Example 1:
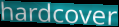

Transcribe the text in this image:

hardcover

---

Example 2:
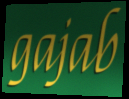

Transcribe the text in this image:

gajab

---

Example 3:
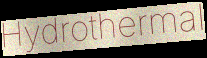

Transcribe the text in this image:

Hydrothermal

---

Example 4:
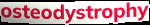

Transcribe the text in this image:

osteodystrophy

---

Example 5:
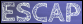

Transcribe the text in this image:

ESCAP